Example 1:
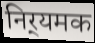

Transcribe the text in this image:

निर्यमक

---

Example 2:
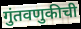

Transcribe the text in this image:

गुंतवणुकीची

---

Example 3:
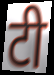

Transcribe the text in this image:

टी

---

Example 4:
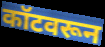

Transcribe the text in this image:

कॉटवरून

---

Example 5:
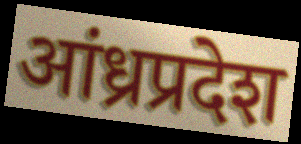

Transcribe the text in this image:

आंध्रप्रदेश